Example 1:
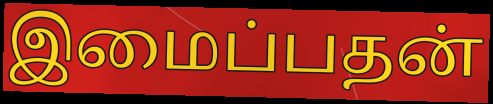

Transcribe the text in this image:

இமைப்பதன்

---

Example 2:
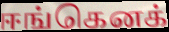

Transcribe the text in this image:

ஈங்கெனக்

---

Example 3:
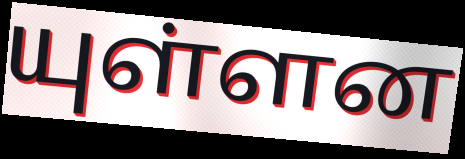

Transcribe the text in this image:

யுள்ளன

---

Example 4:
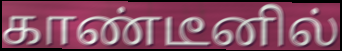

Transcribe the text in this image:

காண்டீனில்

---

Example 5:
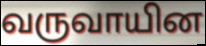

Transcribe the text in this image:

வருவாயின